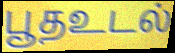
பூதஉடல்